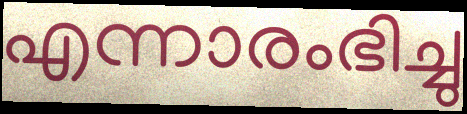
എന്നാരംഭിച്ചു